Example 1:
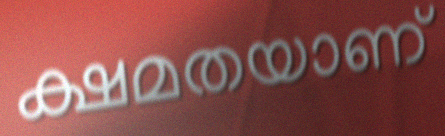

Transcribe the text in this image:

ക്ഷമതയാണ്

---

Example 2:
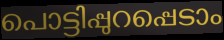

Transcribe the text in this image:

പൊട്ടിപ്പുറപ്പെടാം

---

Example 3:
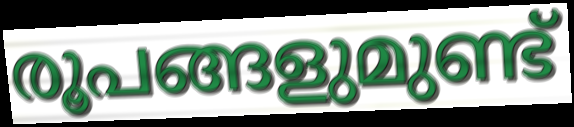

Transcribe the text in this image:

രൂപങ്ങളുമുണ്ട്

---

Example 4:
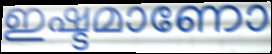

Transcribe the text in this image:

ഇഷ്ടമാണോ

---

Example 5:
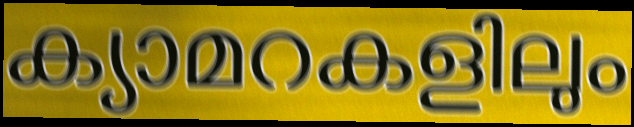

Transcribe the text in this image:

ക്യാമറകളിലും